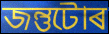
জন্তুটোৰ